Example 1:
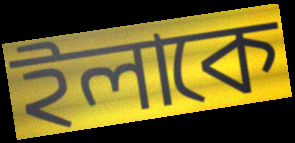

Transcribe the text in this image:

ইলাকে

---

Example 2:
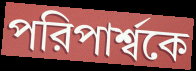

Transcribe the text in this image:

পরিপার্শ্বকে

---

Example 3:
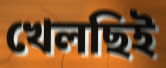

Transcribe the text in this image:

খেলছিই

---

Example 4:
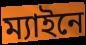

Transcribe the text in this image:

ম্যাইনে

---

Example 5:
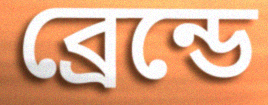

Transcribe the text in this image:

ব্রেন্ডে